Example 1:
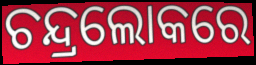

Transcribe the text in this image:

ଚନ୍ଦ୍ରଲୋକରେ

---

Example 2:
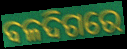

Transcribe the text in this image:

ବଳଦିଗରେ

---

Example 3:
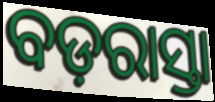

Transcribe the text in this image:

ବଡ଼ରାସ୍ତା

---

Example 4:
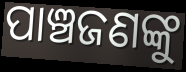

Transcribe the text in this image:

ପାଞ୍ଚଜଣଙ୍କୁ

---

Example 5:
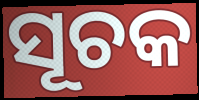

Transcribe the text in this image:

ସୂଚକ